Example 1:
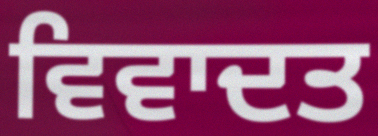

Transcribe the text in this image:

ਵਿਵਾਦਤ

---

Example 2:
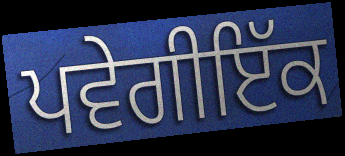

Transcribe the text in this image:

ਪਵੇਗੀਇੱਕ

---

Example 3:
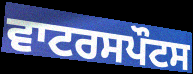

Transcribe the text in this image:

ਵਾਟਰਸਪੌਟਸ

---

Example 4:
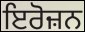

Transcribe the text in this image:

ਇਰੋਜ਼ਨ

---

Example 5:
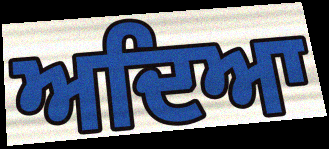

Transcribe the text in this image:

ਅਦਿਆ